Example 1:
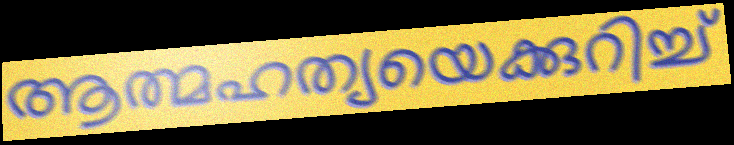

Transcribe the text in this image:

ആത്മഹത്യയെക്കുറിച്ച്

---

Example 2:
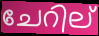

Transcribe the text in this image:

ചേറില്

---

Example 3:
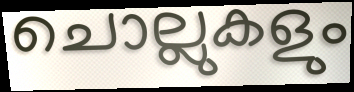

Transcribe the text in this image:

ചൊല്ലുകളും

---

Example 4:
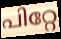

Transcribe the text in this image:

പിറ്റേ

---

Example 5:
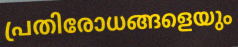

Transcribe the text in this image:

പ്രതിരോധങ്ങളെയും